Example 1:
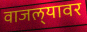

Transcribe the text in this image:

वाजल्यावर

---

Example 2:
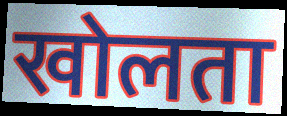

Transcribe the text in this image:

खोलता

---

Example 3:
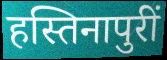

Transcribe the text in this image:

हस्तिनापुरीं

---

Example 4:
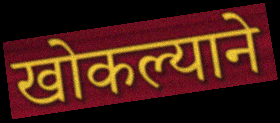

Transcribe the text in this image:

खोकल्याने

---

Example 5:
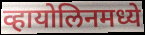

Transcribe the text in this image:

व्हायोलिनमध्ये